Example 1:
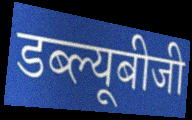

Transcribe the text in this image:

डब्ल्यूबीजी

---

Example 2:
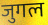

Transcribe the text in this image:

जुगल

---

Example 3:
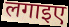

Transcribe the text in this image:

लगाइए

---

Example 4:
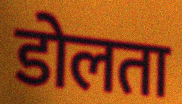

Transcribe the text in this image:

डोलता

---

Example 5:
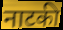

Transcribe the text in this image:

नाटकी